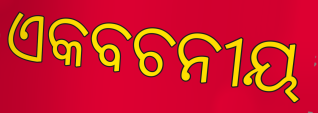
ଏକବଚନୀୟ